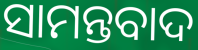
ସାମନ୍ତବାଦ